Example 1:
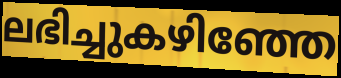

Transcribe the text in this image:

ലഭിച്ചുകഴിഞ്ഞേ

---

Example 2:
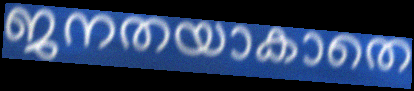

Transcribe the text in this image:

ജനതയാകാതെ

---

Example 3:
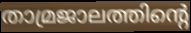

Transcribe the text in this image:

താമ്രജാലത്തിന്റെ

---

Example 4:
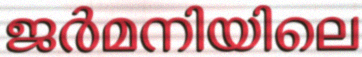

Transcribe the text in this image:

ജർമനിയിലെ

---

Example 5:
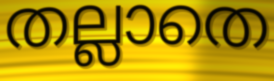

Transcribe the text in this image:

തല്ലാതെ